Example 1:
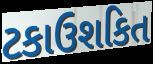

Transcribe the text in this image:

ટકાઉશકિત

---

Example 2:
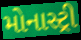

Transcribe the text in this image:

મોનાસ્ટ્રી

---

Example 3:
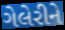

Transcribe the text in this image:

ગેલેરીને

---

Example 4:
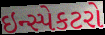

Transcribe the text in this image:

ઇન્સ્પેકટરો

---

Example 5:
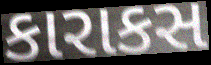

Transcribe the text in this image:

કારાકસ